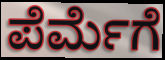
ಪೆರ್ಮೆಗೆ